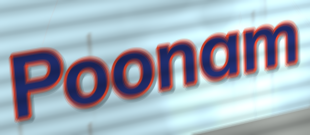
Poonam